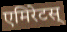
एमिरेटस्